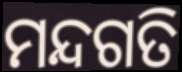
ମନ୍ଦଗତି